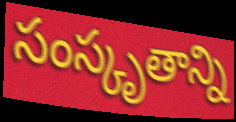
సంస్కృతాన్ని